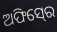
ଅଫିସ୍‍ରେ